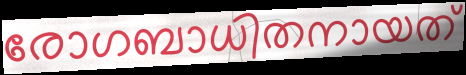
രോഗബാധിതനായത്